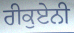
ਰੀਕੁਏਨੀ